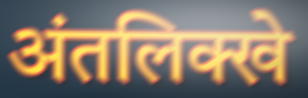
अंतलिक्खे